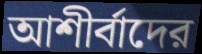
আশীর্বাদের